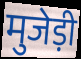
मुजेड़ी